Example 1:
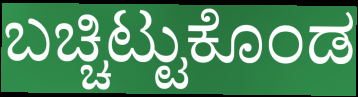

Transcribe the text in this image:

ಬಚ್ಚಿಟ್ಟುಕೊಂಡ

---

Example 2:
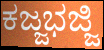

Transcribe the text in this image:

ಕಜ್ಜಭಜ್ಜಿ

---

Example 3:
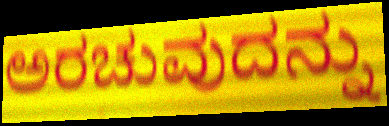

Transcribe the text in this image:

ಅರಚುವುದನ್ನು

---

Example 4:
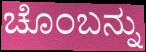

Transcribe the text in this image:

ಚೊಂಬನ್ನು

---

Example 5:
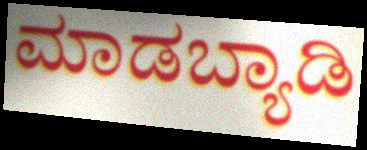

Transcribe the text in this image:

ಮಾಡಬ್ಯಾಡಿ